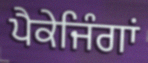
ਪੈਕੇਜਿੰਗਾਂ